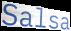
Salsa